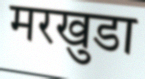
मरखुडा